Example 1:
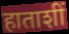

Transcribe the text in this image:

हाताशीं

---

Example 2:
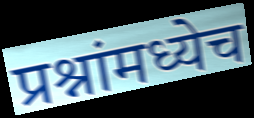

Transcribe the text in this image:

प्रश्नांमध्येच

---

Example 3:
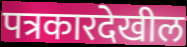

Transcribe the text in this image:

पत्रकारदेखील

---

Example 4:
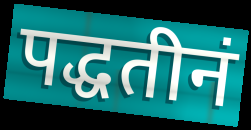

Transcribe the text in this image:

पद्धतीनं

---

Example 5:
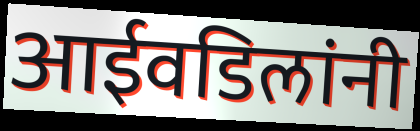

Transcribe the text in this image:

आईवडिलांनी